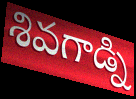
శివగాడ్ని